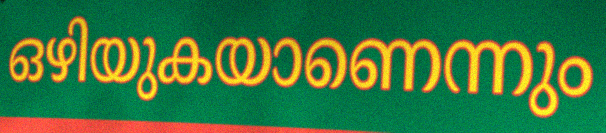
ഒഴിയുകയാണെന്നും